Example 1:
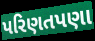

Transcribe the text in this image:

પરિણતપણા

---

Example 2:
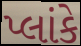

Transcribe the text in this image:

પ્લાંકે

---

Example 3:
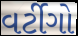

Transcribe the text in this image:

વર્ટીગો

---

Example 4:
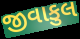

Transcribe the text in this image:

જીવાકુલ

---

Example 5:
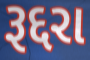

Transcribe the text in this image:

રૂદ્દરા